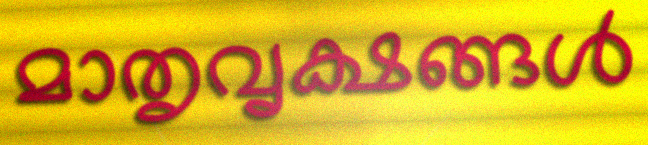
മാതൃവൃക്ഷങ്ങൾ